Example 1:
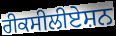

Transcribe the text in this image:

ਰੀਕਸੀਲੀਏਸ਼ਨ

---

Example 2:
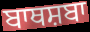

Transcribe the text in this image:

ਬਾਥਸ਼ਬਾ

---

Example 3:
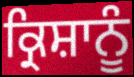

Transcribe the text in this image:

ਕ੍ਰਿਸ਼ਾਨੂੰ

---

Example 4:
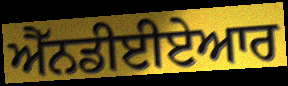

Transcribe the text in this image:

ਐੱਨਡੀਈਏਆਰ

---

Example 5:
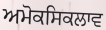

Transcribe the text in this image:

ਅਮੋਕਸਿਕਲਾਵ